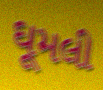
ઘૂમલી